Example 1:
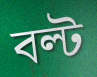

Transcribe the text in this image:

বল্ট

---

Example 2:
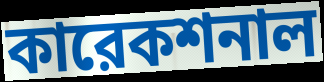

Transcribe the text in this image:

কারেকশনাল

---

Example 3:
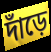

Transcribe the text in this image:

দাঁড়ে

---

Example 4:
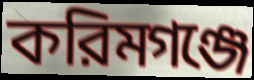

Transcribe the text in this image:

করিমগঞ্জে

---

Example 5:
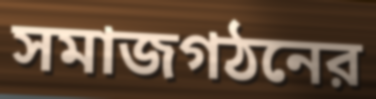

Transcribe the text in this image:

সমাজগঠনের